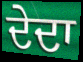
ਦੇਦਾ